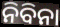
ନିବିନା